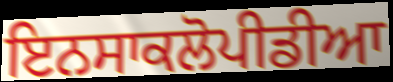
ਇਨਸਾਕਲੋਪੀਡੀਆ